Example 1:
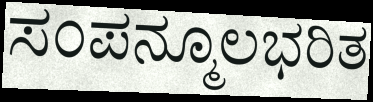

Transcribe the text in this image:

ಸಂಪನ್ಮೂಲಭರಿತ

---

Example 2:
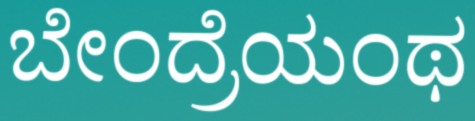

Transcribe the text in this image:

ಬೇಂದ್ರೆಯಂಥ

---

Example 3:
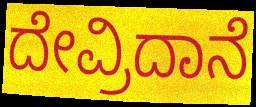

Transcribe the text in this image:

ದೇವ್ರಿದಾನೆ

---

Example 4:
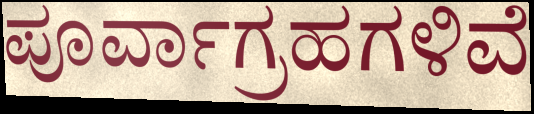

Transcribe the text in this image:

ಪೂರ್ವಾಗ್ರಹಗಳಿವೆ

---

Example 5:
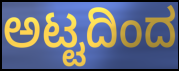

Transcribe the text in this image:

ಅಟ್ಟದಿಂದ